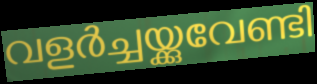
വളർച്ചയ്ക്കുവേണ്ടി